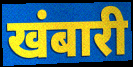
खंबारी